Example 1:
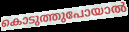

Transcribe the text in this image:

കൊടുത്തുപോയാൽ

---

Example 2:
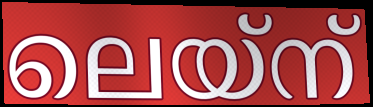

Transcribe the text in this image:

ലെയ്ന്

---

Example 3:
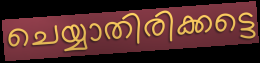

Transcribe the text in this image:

ചെയ്യാതിരിക്കട്ടെ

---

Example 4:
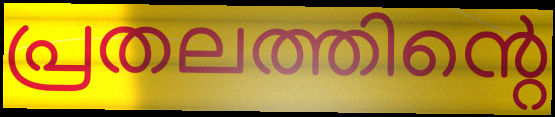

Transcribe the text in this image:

പ്രതലത്തിന്റെ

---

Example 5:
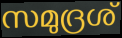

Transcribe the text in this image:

സമുദ്രശ്